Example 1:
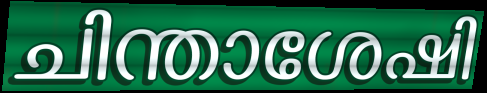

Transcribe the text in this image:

ചിന്താശേഷി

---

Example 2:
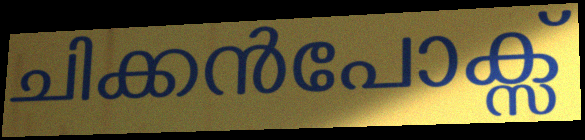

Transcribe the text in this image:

ചിക്കൻപോക്സ്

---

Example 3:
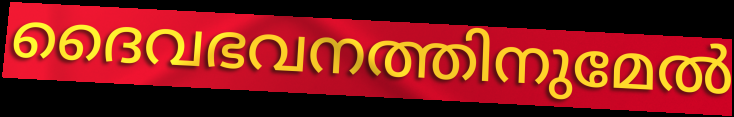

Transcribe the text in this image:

ദൈവഭവനത്തിനുമേൽ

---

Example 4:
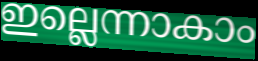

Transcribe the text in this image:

ഇല്ലെന്നാകാം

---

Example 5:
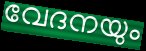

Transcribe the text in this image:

വേദനയും